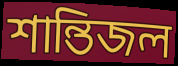
শান্তিজল